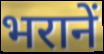
भरानें